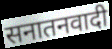
सनातनवादी